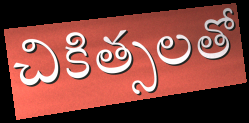
చికిత్సలతో